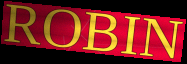
ROBIN